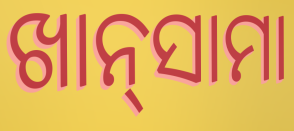
ଖାନ୍‍ସାମା